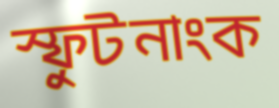
স্ফুটনাংক